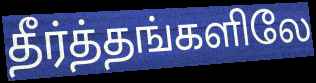
தீர்த்தங்களிலே